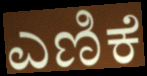
ಎಣಿಕೆ